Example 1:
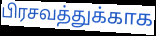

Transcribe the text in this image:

பிரசவத்துக்காக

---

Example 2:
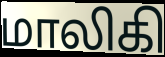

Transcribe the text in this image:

மாலிகி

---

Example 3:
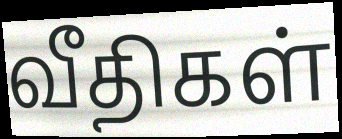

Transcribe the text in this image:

வீதிகள்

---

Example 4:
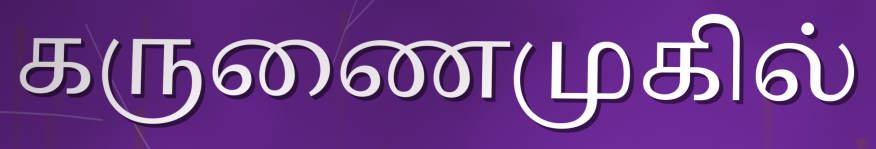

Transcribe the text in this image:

கருணைமுகில்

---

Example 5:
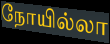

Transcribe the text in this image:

நோயில்லா